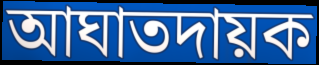
আঘাতদায়ক